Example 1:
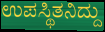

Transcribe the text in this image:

ಉಪಸ್ಥಿತನಿದ್ದು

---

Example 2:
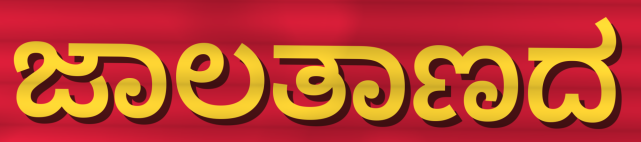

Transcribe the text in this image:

ಜಾಲತಾಣದ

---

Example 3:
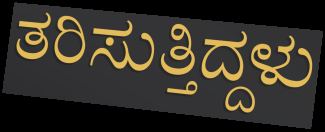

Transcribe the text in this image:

ತರಿಸುತ್ತಿದ್ದಳು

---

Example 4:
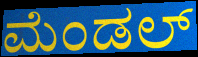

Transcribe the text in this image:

ಮೆಂಡಲ್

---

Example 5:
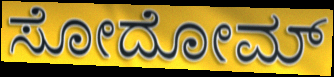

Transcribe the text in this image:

ಸೋದೋಮ್